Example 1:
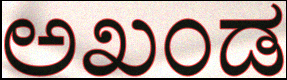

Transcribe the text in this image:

ಅಖಂಡ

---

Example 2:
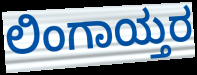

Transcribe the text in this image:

ಲಿಂಗಾಯ್ತರ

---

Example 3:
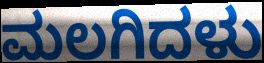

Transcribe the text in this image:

ಮಲಗಿದಳು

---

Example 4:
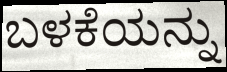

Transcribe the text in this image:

ಬಳಕೆಯನ್ನು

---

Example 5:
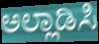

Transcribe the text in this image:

ಅಲ್ಲಾಡಿಸಿ